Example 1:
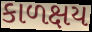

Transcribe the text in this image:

કાળક્ષય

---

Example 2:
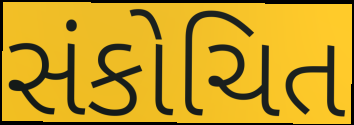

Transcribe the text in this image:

સંકોચિત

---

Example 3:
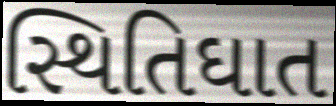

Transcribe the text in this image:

સ્થિતિઘાત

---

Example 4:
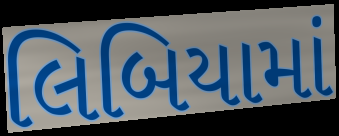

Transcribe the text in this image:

લિબિયામાં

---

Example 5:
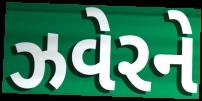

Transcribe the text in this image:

ઝવેરને